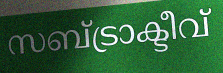
സബ്ട്രാക്ടീവ്